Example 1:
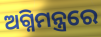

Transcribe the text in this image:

ଅଗ୍ନିମନ୍ତ୍ରରେ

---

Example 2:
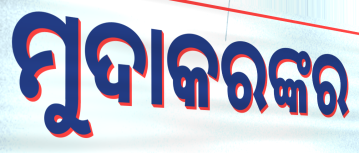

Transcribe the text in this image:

ମୁଦାକରଙ୍କର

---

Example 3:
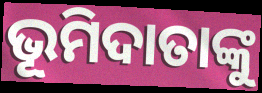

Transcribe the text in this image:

ଭୂମିଦାତାଙ୍କୁ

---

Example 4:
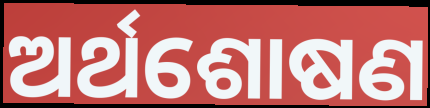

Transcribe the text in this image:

ଅର୍ଥଶୋଷଣ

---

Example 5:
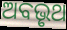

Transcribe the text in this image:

ଅବଭୃଥ